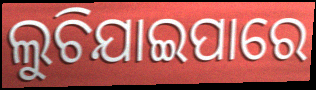
ଲୁଚିଯାଇପାରେ